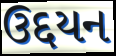
ઉદ્દયન